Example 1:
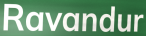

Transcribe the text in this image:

Ravandur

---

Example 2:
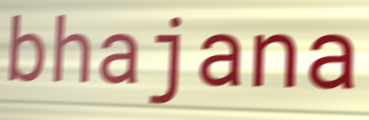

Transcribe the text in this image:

bhajana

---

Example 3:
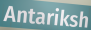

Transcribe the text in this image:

Antariksh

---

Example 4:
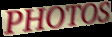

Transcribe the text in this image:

PHOTOS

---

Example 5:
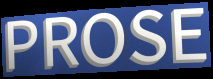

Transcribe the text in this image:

PROSE